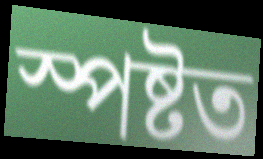
স্পষ্টত